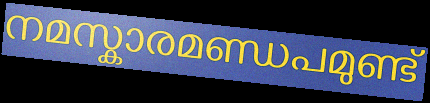
നമസ്കാരമണ്ഡപമുണ്ട്